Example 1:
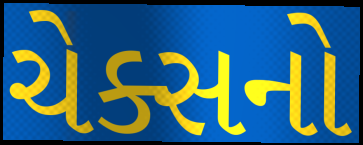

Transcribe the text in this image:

ચેક્સનો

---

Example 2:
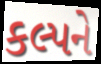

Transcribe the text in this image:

કલ્પને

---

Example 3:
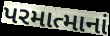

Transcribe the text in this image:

પરમાત્માનાં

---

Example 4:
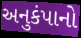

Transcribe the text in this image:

અનુકંપાનો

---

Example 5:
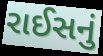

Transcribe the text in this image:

રાઈસનું